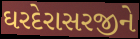
ઘરદેરાસરજીને